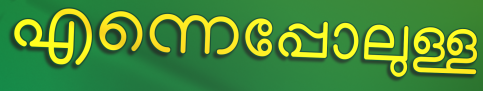
എന്നെപ്പോലുള്ള